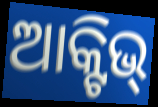
ଆକ୍ଟିଭ୍